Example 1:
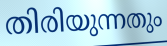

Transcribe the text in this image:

തിരിയുന്നതും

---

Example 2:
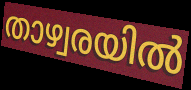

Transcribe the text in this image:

താഴ്വരയിൽ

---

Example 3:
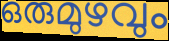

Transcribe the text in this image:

ഒരുമുഴവും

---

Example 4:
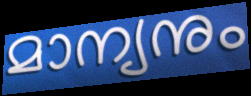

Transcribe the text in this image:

മാന്യനും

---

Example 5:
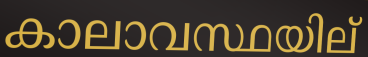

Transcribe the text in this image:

കാലാവസ്ഥയില്